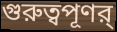
গুরুত্বপূণর্